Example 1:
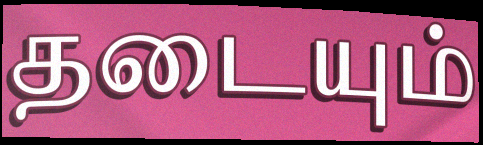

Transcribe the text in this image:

தடையும்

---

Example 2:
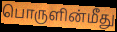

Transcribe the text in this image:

பொருளின்மீது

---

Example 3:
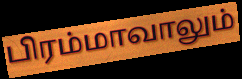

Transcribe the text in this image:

பிரம்மாவாலும்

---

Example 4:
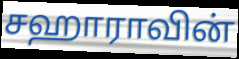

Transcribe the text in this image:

சஹாராவின்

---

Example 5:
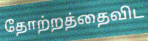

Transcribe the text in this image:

தோற்றத்தைவிட